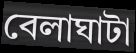
বেলাঘাটা